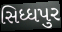
સિધ્ધપુર